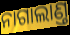
ନାଗାଲାଣ୍ତ